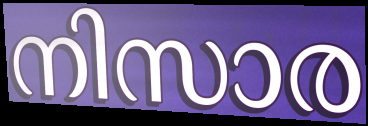
നിസാര